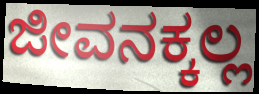
ಜೀವನಕ್ಕಲ್ಲ